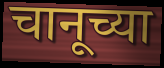
चानूच्या